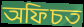
অফিচত